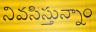
నివసిస్తున్నాం